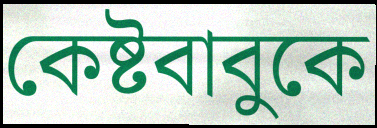
কেষ্টবাবুকে